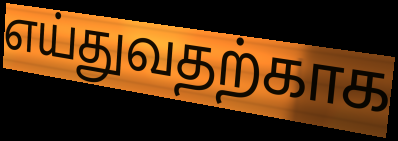
எய்துவதற்காக